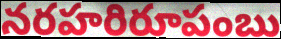
నరహరిరూపంబు